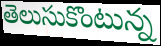
తెలుసుకొంటున్న